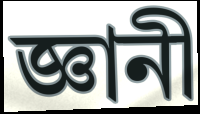
জ্ঞানী